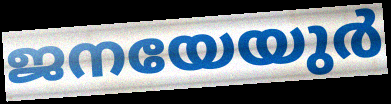
ജനയേയുർ